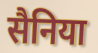
सैनिया